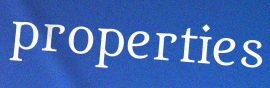
properties